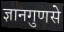
ज्ञानगुणसे